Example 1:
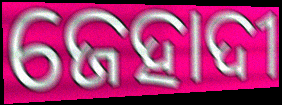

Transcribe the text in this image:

ଜେହାଦୀ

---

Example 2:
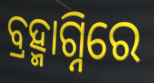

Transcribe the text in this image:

ବ୍ରହ୍ମାଗ୍ନିରେ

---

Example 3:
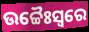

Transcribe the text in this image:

ଉଚ୍ଚୈଃସ୍ୱରେ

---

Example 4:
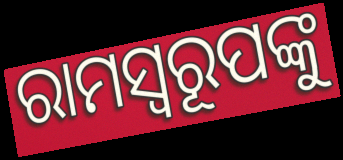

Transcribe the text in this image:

ରାମସ୍ୱରୂପଙ୍କୁ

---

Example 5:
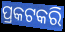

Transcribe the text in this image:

ପ୍ରକଟକରି